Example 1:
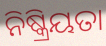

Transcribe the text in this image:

ନିଷ୍କ୍ରିୟତା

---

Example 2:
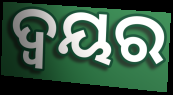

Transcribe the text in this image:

ଦ୍ବୟର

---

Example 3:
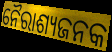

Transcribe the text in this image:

ନୈରାଶ୍ୟଜନକ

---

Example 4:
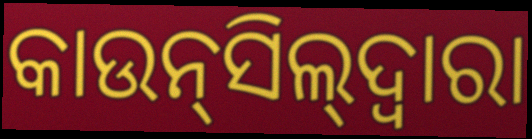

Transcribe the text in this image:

କାଉନ୍‌ସିଲ୍‌ଦ୍ବାରା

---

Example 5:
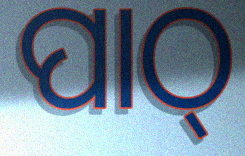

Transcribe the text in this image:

ପାଠ୍